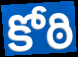
కోఠి